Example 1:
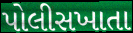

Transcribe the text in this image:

પોલીસખાતા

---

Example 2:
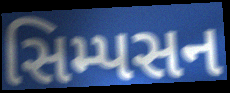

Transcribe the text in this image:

સિમ્પસન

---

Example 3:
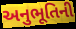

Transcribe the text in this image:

અનુભૂતિની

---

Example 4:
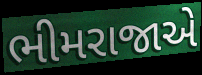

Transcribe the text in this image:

ભીમરાજાએ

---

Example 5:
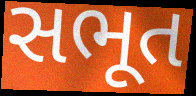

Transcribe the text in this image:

સભૂત